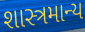
શાસ્ત્રમાન્ય